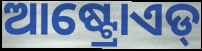
ଆଷ୍ଟ୍ରୋଏଡ୍